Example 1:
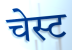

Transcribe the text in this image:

चेस्‍ट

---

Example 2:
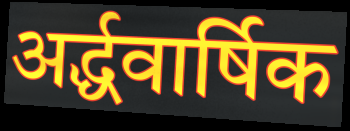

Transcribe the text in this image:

अर्द्धवार्षिक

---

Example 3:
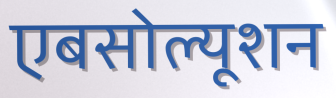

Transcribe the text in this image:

एबसोल्यूशन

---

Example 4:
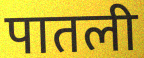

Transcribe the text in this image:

पातली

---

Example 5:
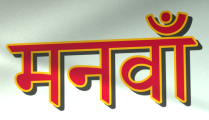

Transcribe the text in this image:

मनवाँ